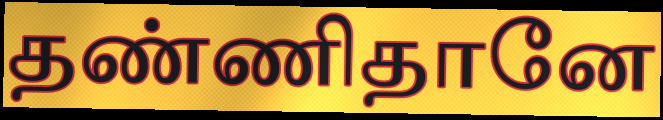
தண்ணிதானே